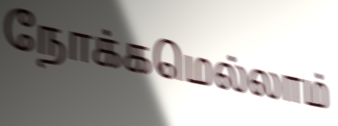
நோக்கமெல்லாம்